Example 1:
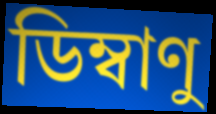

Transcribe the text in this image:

ডিম্বাণু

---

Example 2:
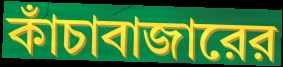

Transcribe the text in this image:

কাঁচাবাজারের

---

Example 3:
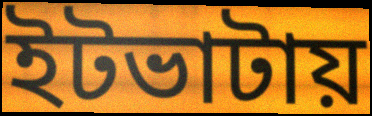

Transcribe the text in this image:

ইটভাটায়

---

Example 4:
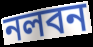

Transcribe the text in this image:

নলবন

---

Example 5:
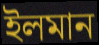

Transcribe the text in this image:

ইলমান